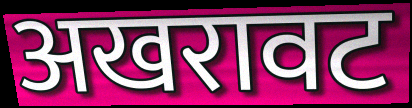
अखरावट